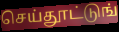
செய்தூட்டுங்